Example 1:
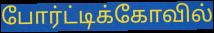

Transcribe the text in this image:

போர்ட்டிக்கோவில்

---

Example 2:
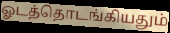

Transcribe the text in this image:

ஓடத்தொடங்கியதும்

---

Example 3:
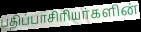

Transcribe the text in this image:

பதிப்பாசிரியர்களின்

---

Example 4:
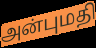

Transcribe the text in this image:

அன்புமதி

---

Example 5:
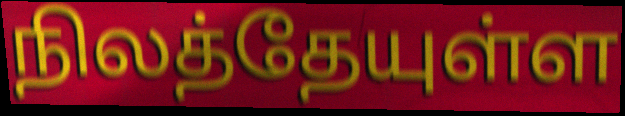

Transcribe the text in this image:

நிலத்தேயுள்ள